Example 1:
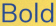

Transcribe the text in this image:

Bold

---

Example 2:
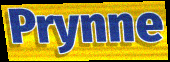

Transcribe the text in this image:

Prynne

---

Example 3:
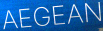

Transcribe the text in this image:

AEGEAN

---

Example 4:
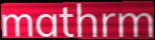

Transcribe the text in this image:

mathrm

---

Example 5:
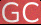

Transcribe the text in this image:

GC